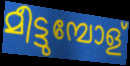
മീട്ടുമ്പോള്